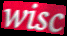
wisc